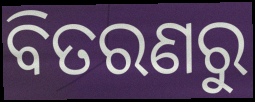
ବିତରଣରୁ